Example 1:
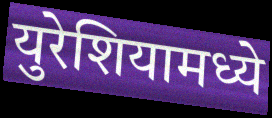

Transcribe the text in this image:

युरेशियामध्ये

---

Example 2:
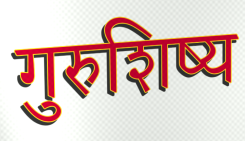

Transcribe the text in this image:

गुरुशिष्य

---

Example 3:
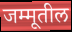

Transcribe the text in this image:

जम्मूतील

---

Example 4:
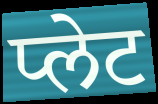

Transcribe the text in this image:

प्लेट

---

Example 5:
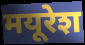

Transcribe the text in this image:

मयूरेश